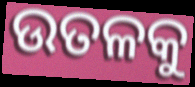
ଉତଳକୁ